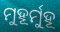
ମୁହୂର୍ମୁହୂ